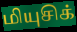
மியுசிக்